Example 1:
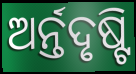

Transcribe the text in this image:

ଅର୍ନ୍ତଦୃଷ୍ଟି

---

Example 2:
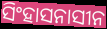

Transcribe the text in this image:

ସିଂହାସନାସୀନ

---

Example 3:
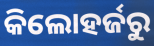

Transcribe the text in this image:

କିଲୋହର୍ଜରୁ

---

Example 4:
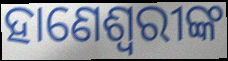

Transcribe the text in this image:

ହାଣେଶ୍ୱରୀଙ୍କ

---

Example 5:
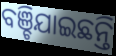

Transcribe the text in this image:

ବଞ୍ଚିଯାଇଛନ୍ତି